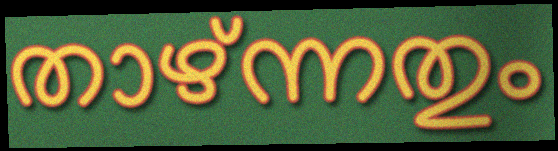
താഴ്ന്നതും